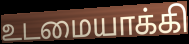
உடமையாக்கி